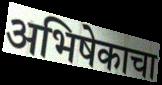
अभिषेकाचा